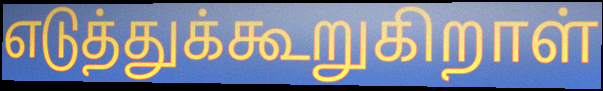
எடுத்துக்கூறுகிறாள்